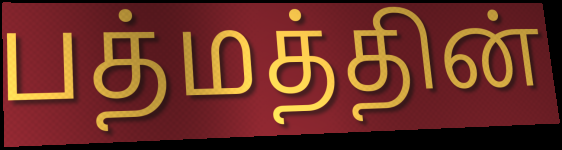
பத்மத்தின்